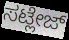
ಸಟ್ಲೇಜ್